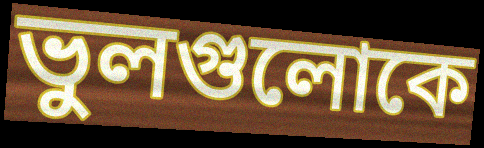
ভুলগুলোকে